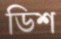
ডিশ